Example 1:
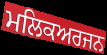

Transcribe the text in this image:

ਮਲਿਕਅਰਜਨ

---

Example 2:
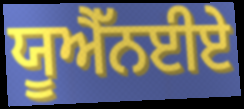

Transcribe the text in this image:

ਯੂਐੱਨਈਏ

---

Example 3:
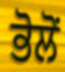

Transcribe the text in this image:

ਭੋਲੋਂ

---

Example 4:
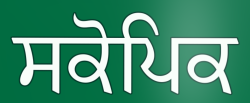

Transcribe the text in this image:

ਸਕੋਪਿਕ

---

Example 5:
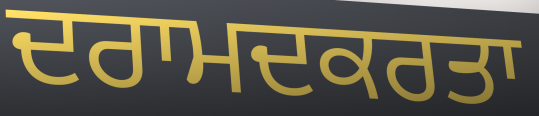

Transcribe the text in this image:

ਦਰਾਮਦਕਰਤਾ